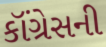
કૉંગ્રેસની